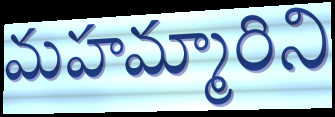
మహమ్మారిని